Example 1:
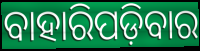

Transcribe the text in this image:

ବାହାରିପଡ଼ିବାର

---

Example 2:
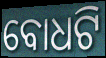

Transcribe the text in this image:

ବୋଧଟି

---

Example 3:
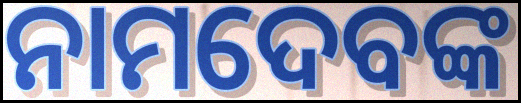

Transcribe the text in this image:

ନାମଦେବଙ୍କ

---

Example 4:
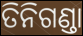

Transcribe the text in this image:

ତିନିଗଣ୍ଡା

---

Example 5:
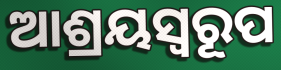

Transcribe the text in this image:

ଆଶ୍ରୟସ୍ୱରୂପ